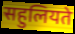
सहुलियते